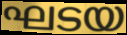
ഘടയ